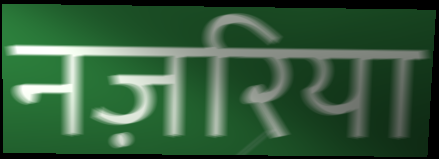
नज़रिया